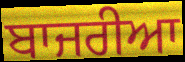
ਬਾਜਰੀਆ